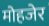
मोहजेर